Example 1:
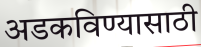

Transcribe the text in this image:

अडकविण्यासाठी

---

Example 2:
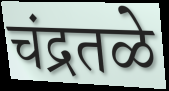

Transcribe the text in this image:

चंद्रतळे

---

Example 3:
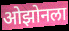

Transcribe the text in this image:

ओझोनला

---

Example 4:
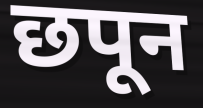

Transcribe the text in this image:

छपून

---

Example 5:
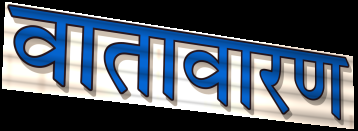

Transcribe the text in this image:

वातावारण